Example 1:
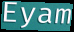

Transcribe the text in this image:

Eyam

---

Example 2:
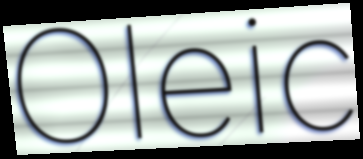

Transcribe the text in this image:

Oleic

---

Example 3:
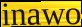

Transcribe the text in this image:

inawo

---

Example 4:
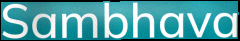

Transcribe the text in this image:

Sambhava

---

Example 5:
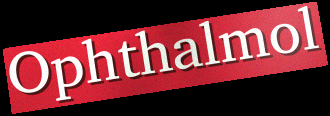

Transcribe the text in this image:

Ophthalmol